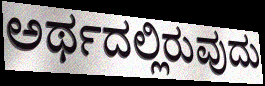
ಅರ್ಥದಲ್ಲಿರುವುದು